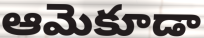
ఆమెకూడా